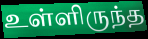
உள்ளிருந்த